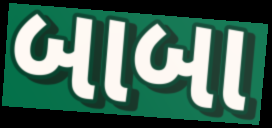
બાબા